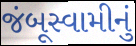
જંબૂસ્વામીનું